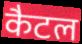
कैटल